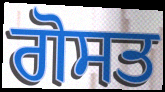
ਗੋਸਤ